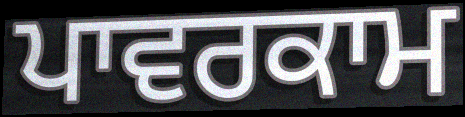
ਪਾਵਰਕਾਮ